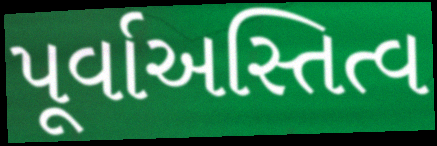
પૂર્વાઅસ્તિત્વ